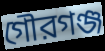
গৌরগঞ্জ